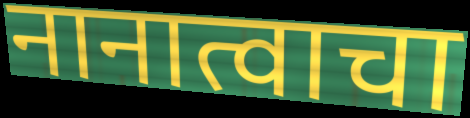
नानात्वाचा